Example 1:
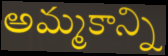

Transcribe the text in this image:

అమ్మకాన్ని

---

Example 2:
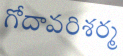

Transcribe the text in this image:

గోదావరిశర్మ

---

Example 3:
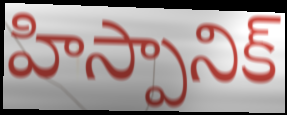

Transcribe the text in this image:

హిస్పానిక్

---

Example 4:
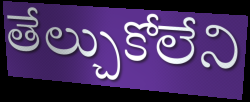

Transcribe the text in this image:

తేల్చుకోలేని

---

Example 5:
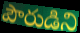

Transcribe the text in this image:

పౌరుడిని